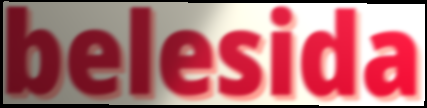
belesida